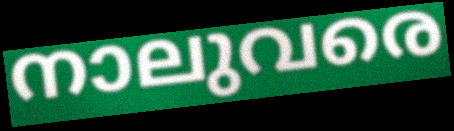
നാലുവരെ